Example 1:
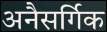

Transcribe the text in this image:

अनैसर्गिक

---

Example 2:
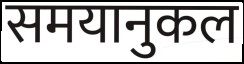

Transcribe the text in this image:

समयानुकल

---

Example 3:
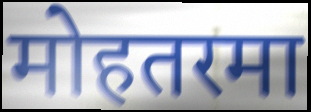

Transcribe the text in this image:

मोहतरमा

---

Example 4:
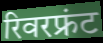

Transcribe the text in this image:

रिवरफ्रंट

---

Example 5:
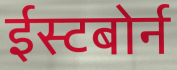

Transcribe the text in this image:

ईस्टबोर्न